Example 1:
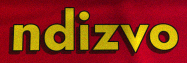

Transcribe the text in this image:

ndizvo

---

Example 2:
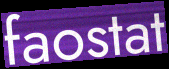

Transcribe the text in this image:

faostat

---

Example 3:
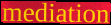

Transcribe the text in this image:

mediation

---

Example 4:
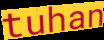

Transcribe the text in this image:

tuhan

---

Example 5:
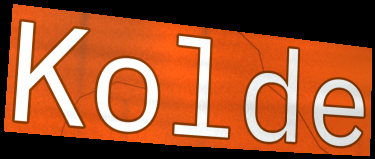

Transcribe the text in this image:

Kolde